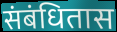
संबंधितास